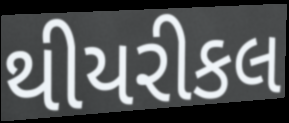
થીયરીકલ